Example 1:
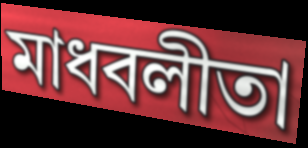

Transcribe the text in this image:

মাধবলীতা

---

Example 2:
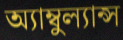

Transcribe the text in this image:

অ্যাম্বুল্যান্স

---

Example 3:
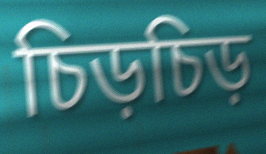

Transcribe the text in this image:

চিড়চিড়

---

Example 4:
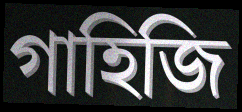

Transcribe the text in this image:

গাহিজি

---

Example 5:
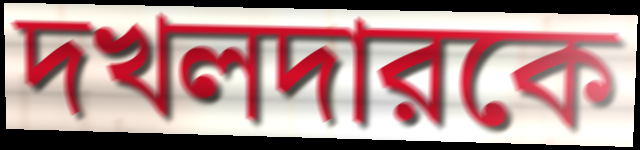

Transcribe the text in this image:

দখলদারকে